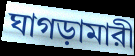
ঘাগড়ামারী